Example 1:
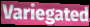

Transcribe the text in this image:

Variegated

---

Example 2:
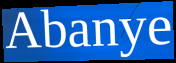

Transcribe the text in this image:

Abanye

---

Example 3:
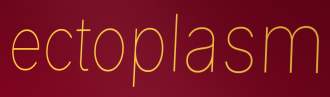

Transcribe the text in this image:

ectoplasm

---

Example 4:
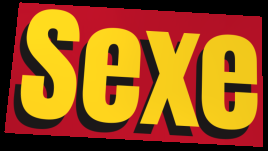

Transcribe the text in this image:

Sexe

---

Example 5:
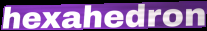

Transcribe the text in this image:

hexahedron